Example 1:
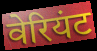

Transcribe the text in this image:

वेरियंट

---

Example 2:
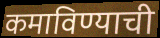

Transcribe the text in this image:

कमाविण्याची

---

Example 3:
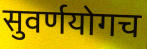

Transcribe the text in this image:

सुवर्णयोगच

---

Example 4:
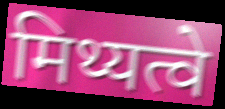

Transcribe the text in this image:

मिथ्यत्वे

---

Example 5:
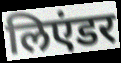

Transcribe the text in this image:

लिएंडर